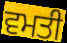
ਵਮਤੀ